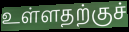
உள்ளதற்குச்